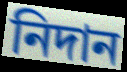
নিদান